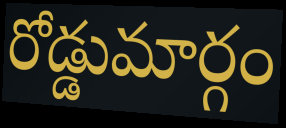
రోడ్డుమార్గం